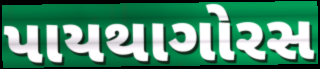
પાયથાગોરસ